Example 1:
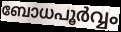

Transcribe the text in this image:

ബോധപൂർവ്വം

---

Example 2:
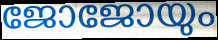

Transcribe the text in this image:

ജോജോയും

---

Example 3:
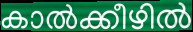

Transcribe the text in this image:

കാൽക്കീഴിൽ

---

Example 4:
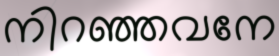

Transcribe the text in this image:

നിറഞ്ഞവനേ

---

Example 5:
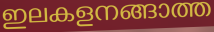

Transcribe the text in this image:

ഇലകളനങ്ങാത്ത